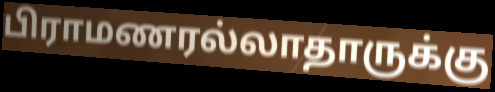
பிராமணரல்லாதாருக்கு